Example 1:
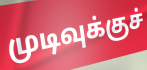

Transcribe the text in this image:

முடிவுக்குச்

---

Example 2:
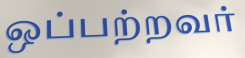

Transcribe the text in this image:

ஒப்பற்றவர்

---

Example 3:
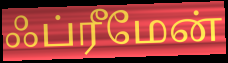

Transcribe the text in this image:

ஃப்ரீமேன்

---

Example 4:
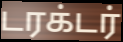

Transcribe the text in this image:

டரக்டர்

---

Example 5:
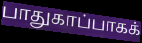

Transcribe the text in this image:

பாதுகாப்பாகக்